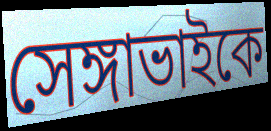
সেঙ্গাভাইকে